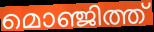
മൊഞ്ജിത്ത്